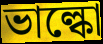
ভাল্কো